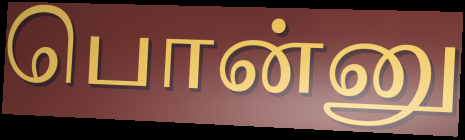
பொன்னு